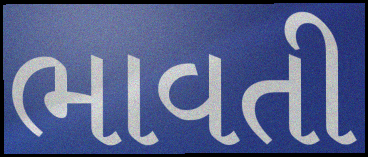
ભાવતી